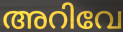
അറിവേ